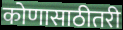
कोणासाठीतरी